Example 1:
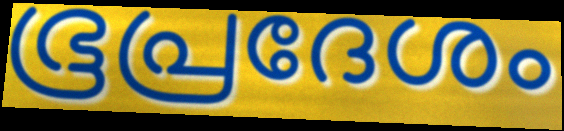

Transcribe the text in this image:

ഭൂപ്രദേശം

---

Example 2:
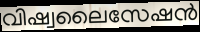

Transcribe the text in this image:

വിഷ്വലൈസേഷൻ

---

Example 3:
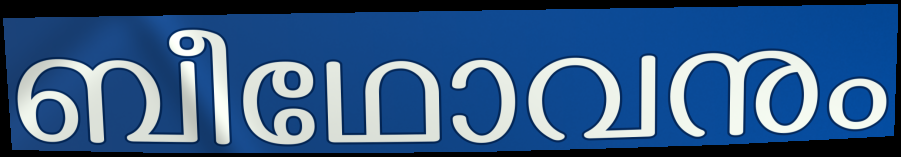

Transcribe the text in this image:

ബീഥോവനും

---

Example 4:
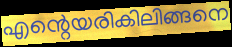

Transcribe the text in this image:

എന്റെയരികിലിങ്ങനെ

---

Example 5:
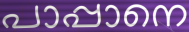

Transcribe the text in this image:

പാപ്പാനെ